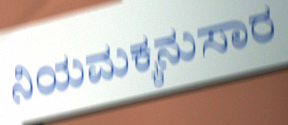
ನಿಯಮಕ್ಕನುಸಾರ